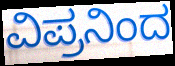
ವಿಪ್ರನಿಂದ